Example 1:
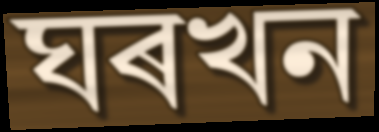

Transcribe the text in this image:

ঘৰখন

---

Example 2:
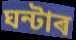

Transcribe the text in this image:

ঘন্টাৰ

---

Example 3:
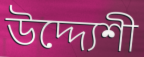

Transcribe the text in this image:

উদ্দ্যেশী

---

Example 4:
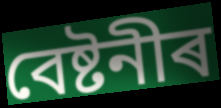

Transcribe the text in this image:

বেষ্টনীৰ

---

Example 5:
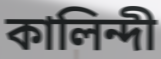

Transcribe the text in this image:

কালিন্দী